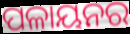
ପଳାୟନର